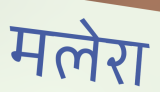
मलेरा